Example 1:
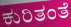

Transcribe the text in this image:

ಕುರಿತಂತೆ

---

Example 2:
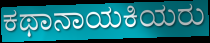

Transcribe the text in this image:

ಕಥಾನಾಯಕಿಯರು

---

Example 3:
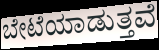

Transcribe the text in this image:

ಬೇಟೆಯಾಡುತ್ತವೆ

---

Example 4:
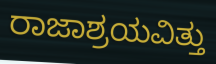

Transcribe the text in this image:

ರಾಜಾಶ್ರಯವಿತ್ತು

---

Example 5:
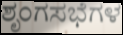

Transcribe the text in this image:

ಶೃಂಗಸಭೆಗಳ